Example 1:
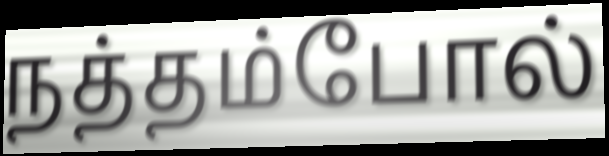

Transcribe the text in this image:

நத்தம்போல்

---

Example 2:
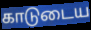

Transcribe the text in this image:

காடுடைய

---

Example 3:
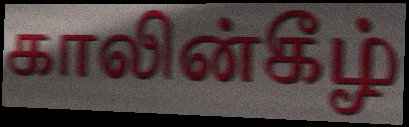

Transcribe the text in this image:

காலின்கீழ்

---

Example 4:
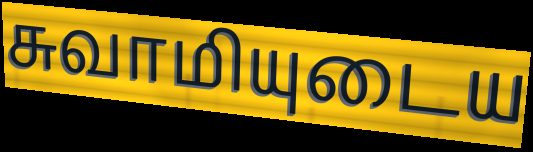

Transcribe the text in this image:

சுவாமியுடைய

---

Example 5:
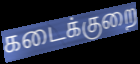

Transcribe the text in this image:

கடைக்குறை